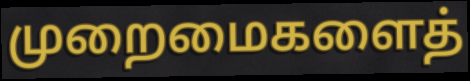
முறைமைகளைத்